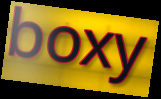
boxy